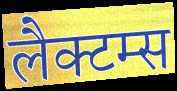
लैक्टम्स